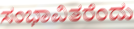
ಸಂಭಾವಿತರೆಂದು